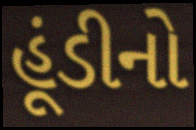
હૂંડીનો